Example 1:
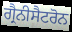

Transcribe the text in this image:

ਗ੍ਰੈਨੀਸੈਟਰੋਨ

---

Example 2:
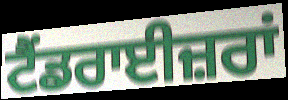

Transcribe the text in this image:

ਟੈਂਡਰਾਈਜ਼ਰਾਂ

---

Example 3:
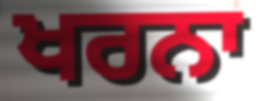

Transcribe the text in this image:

ਖਰਨਾ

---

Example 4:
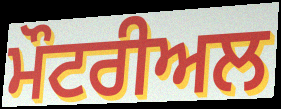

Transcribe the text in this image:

ਮੌਟਰੀਅਲ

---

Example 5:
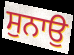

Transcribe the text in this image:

ਸੁਨਾਉ